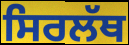
ਸਿਰਲੱਥ